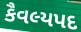
કૈવલ્યપદ